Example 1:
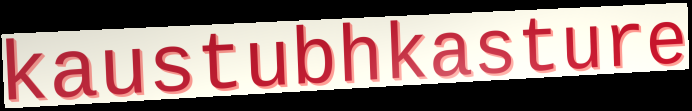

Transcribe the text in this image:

kaustubhkasture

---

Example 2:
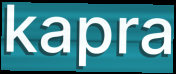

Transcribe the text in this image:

kapra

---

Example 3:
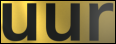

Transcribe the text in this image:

uur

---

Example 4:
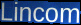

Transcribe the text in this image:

Lincom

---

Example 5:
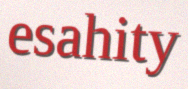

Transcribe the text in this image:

esahity